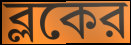
ব্লকের